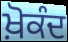
ਖ਼ੋਕੰਦ